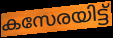
കസേരയിട്ട്